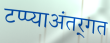
टप्प्याअंतर्गत